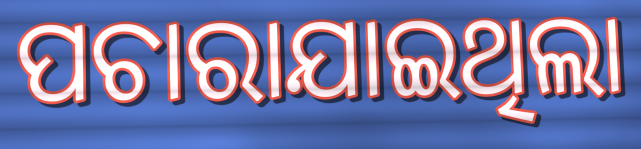
ପଚାରାଯାଇଥିଲା